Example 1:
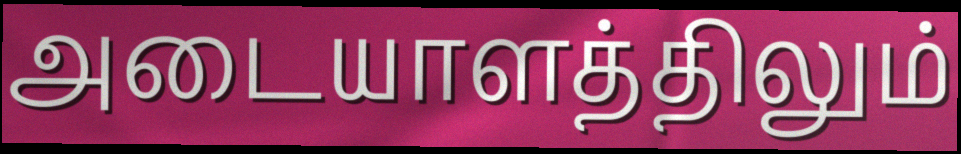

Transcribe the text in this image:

அடையாளத்திலும்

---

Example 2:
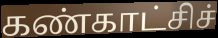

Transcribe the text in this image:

கண்காட்சிச்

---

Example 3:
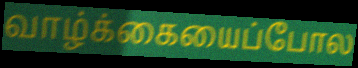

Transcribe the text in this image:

வாழ்க்கையைப்போல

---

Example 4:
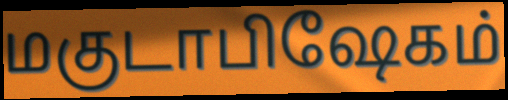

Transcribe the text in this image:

மகுடாபிஷேகம்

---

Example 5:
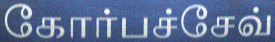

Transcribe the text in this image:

கோர்பச்சேவ்